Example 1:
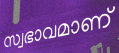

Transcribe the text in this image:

സ്വഭാവമാണ്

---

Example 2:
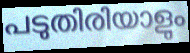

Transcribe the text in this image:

പടുതിരിയാളും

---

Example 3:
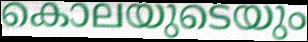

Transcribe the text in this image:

കൊലയുടെയും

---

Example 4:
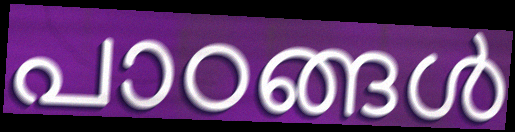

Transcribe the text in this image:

പാഠങ്ങൾ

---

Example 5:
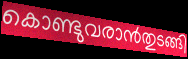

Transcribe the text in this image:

കൊണ്ടുവരാൻതുടങ്ങി